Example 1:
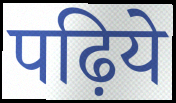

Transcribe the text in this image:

पढ़िये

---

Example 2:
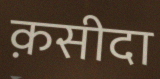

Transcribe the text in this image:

क़सीदा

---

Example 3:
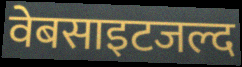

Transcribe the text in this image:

वेबसाइटजल्द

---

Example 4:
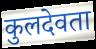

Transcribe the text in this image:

कुलदेवता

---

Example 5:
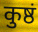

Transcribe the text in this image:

कुष्ठं